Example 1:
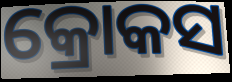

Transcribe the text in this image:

କ୍ରୋକସ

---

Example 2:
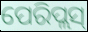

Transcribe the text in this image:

ପେରିପ୍ଲସ୍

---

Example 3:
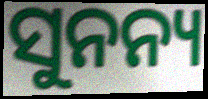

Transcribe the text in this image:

ସୁନନ୍ୟ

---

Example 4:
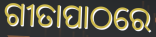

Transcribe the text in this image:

ଗୀତାପାଠରେ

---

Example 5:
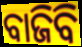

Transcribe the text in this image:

ବାଜିବି